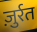
ज़ुर्रत